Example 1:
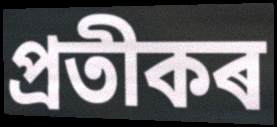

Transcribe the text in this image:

প্ৰতীকৰ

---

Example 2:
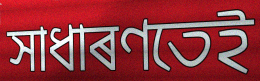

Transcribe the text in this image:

সাধাৰণতেই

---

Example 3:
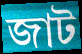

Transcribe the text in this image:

জাট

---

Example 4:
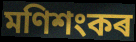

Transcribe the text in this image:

মণিশংকৰ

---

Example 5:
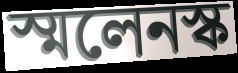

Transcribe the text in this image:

স্মলেনস্ক